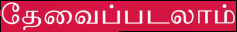
தேவைப்படலாம்